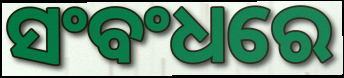
ସଂବଂଧରେ